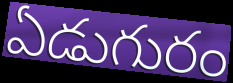
ఏడుగురం